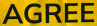
AGREE